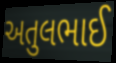
અતુલભાઈ